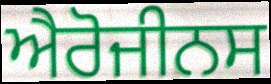
ਐਰੋਜੀਨਸ